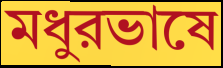
মধুরভাষে